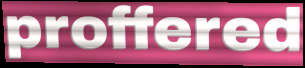
proffered